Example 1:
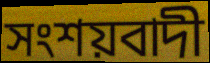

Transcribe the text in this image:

সংশয়বাদী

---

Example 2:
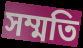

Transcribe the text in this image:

সম্মতি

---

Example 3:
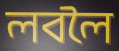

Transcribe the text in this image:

লবলৈ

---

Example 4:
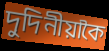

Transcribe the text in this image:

দুদিনীয়াকৈ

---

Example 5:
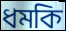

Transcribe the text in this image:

ধমকি